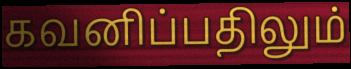
கவனிப்பதிலும்